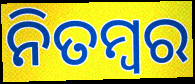
ନିତମ୍ୱର